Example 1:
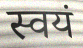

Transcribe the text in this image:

स्वयं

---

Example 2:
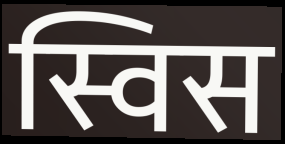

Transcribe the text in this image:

स्विस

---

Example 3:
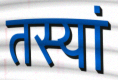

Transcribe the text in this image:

तस्यां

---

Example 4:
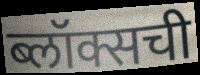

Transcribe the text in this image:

ब्लॉक्सची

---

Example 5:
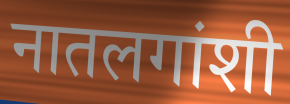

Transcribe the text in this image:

नातलगांशी